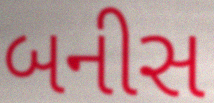
બનીસ